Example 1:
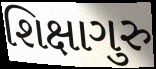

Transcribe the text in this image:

શિક્ષાગુરુ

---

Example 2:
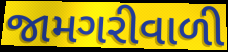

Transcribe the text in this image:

જામગરીવાળી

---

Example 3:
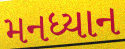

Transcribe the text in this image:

મનધ્યાન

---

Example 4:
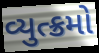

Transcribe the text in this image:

વ્યુત્ક્રમો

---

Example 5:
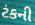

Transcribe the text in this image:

ટંકની